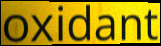
oxidant